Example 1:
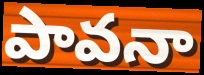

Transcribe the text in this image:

పావనా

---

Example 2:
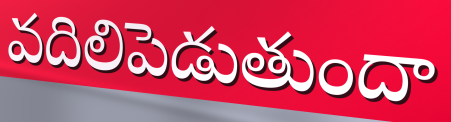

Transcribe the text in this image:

వదిలిపెడుతుందా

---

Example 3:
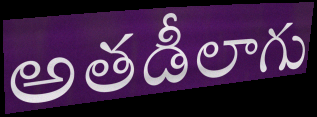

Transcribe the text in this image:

అతడీలాగు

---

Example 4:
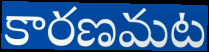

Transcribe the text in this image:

కారణమట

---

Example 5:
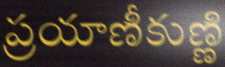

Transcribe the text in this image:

ప్రయాణీకుణ్ణి